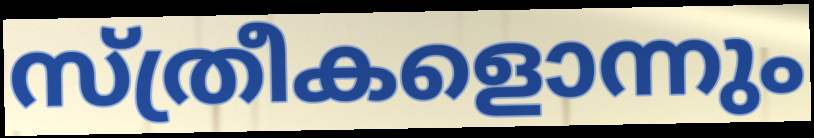
സ്ത്രീകളൊന്നും